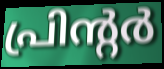
പ്രിന്റർ